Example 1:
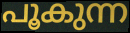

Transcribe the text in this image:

പൂകുന്ന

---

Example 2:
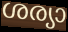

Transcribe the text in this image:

ശര്യാ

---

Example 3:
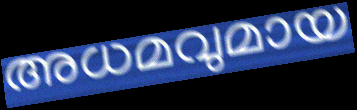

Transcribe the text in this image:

അധമവുമായ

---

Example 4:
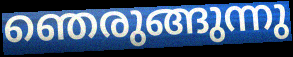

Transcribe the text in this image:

ഞെരുങ്ങുന്നു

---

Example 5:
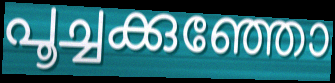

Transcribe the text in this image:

പൂച്ചക്കുഞ്ഞോ